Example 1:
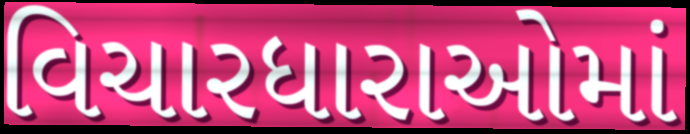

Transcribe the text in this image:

વિચારધારાઓમાં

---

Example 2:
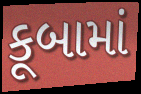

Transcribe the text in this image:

કૂબામાં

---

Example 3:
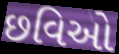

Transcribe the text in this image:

છવિઓ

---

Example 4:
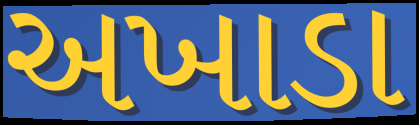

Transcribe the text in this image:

અખાડા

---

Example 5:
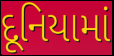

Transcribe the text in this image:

દૂનિયામાં